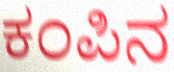
ಕಂಪಿನ